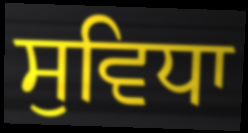
ਸੁਵਿਧਾ